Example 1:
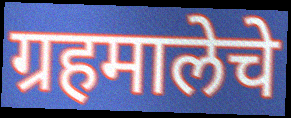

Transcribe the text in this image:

ग्रहमालेचे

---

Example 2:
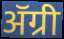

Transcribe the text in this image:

ॲग्री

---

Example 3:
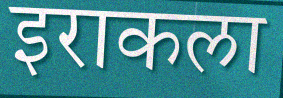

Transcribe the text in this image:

इराकला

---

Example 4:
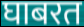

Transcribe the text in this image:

घाबरत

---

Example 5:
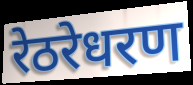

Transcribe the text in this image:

रेठरेधरण